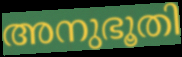
അനുഭൂതി